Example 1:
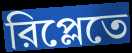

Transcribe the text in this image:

রিপ্লেতে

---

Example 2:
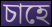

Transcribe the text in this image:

চাহে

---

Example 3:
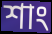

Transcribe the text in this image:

শাং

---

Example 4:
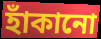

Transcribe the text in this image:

হাঁকানো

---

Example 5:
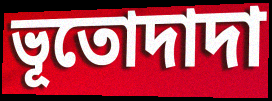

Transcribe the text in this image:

ভূতোদাদা